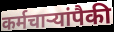
कर्मचार्‍यांपैकी